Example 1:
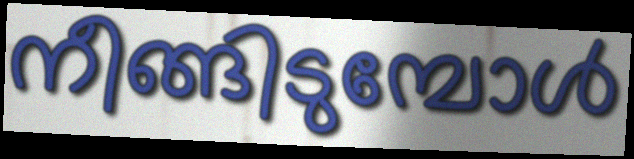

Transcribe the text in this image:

നീങ്ങിടുമ്പോൾ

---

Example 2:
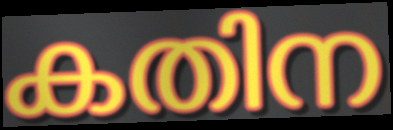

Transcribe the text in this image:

കതിന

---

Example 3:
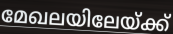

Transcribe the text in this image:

മേഖലയിലേയ്ക്ക്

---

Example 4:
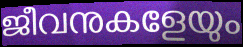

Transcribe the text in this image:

ജീവനുകളേയും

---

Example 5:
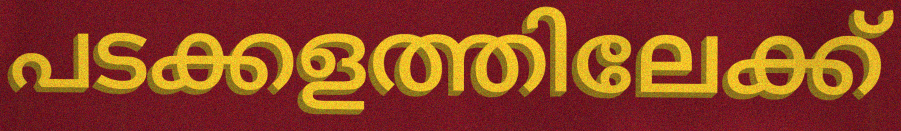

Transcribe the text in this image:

പടക്കളത്തിലേക്ക്